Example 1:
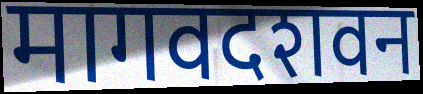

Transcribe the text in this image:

मागवदशवन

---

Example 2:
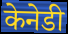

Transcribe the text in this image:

केनेडी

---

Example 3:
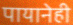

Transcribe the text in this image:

पायानेही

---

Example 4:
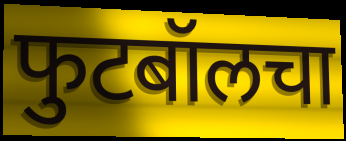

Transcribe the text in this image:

फुटबॉलचा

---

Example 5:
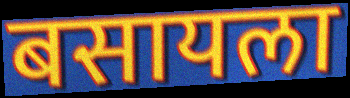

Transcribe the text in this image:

बसायला